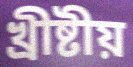
খ্ৰীষ্টীয়